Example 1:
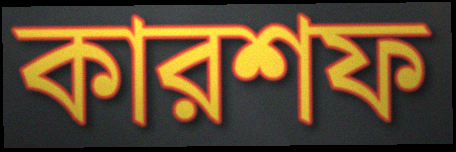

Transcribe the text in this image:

কারশফ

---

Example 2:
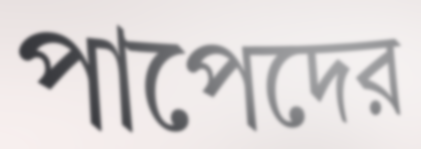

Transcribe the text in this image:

পাপেদের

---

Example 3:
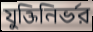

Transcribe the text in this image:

যুক্তিনির্ভর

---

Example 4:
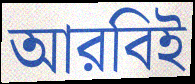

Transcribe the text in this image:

আরবিই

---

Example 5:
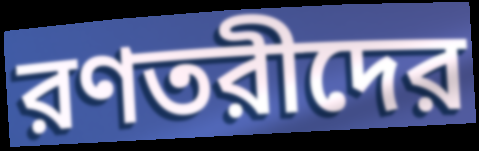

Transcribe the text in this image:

রণতরীদের